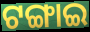
ଟଙ୍ଗାଇ